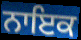
ਨਾਇਕ